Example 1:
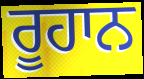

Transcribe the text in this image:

ਰੂਹਾਨ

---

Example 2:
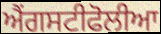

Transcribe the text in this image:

ਐਂਗਸਟੀਫੋਲੀਆ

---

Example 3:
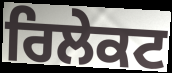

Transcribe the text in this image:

ਰਿਲੇਕਟ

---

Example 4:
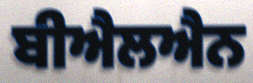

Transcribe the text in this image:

ਬੀਐਲਐਨ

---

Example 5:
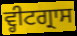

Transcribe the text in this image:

ਵ੍ਹੀਟਗ੍ਰਾਸ